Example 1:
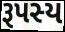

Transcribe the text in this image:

રૂપસ્ય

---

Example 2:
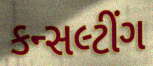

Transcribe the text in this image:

કન્સલ્ટીંગ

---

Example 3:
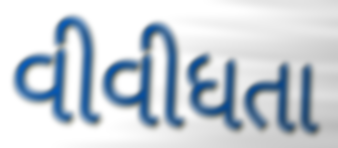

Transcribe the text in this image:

વીવીધતા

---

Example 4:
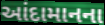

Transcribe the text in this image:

આંદામાનના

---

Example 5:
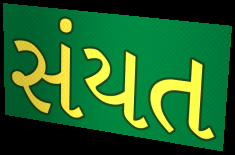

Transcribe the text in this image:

સંયત